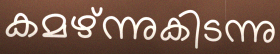
കമഴ്ന്നുകിടന്നു